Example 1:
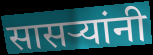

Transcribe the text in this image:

सासर्‍यांनी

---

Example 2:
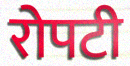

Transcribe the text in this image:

रोपटी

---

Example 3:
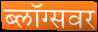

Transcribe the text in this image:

ब्लॉग्सवर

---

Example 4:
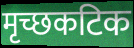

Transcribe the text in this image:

मृच्छकटिक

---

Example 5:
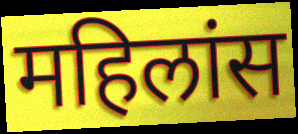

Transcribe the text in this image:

महिलांस